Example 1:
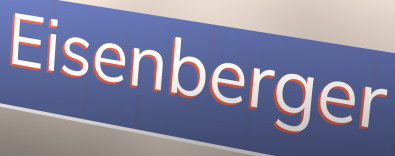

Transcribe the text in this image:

Eisenberger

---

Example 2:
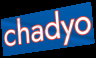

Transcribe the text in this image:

chadyo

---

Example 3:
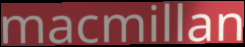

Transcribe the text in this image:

macmillan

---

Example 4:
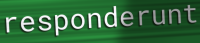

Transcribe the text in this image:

responderunt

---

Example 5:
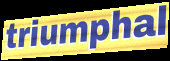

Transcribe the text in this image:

triumphal